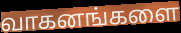
வாகனங்களை